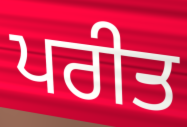
ਪਰੀਤ